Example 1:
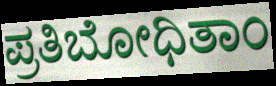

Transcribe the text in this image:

ಪ್ರತಿಬೋಧಿತಾಂ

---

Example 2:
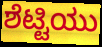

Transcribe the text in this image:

ಶೆಟ್ಟಿಯು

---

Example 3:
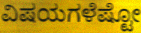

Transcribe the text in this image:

ವಿಷಯಗಳೆಷ್ಟೋ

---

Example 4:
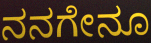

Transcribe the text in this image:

ನನಗೇನೂ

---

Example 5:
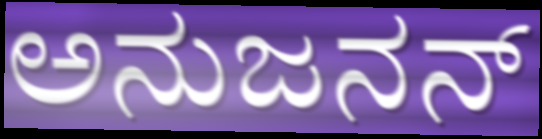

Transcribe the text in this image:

ಅನುಜನನ್